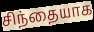
சிந்தையாக